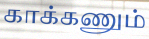
காக்கணும்